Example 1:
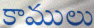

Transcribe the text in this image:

కాములు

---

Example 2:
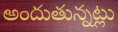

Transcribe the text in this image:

అందుతున్నట్లు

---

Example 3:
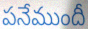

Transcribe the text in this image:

పనేముందీ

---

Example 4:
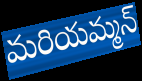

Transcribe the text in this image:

మరియమ్మన్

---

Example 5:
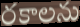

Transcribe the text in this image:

రకాలను